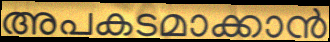
അപകടമാക്കാൻ